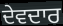
ਦੇਵਦਾਰ